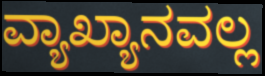
ವ್ಯಾಖ್ಯಾನವಲ್ಲ